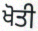
ਖੋਤੀ